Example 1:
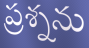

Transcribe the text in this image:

ప్రశ్నను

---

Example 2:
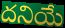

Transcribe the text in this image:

దనియే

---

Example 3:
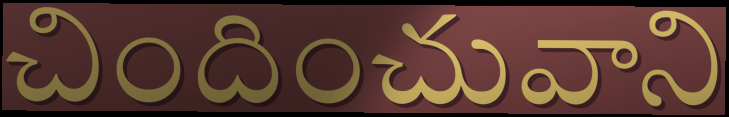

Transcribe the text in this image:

చిందించువాని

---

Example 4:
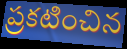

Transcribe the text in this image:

ప్రకటించిన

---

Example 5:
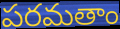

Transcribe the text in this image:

పరమతాం